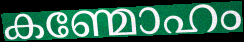
കണ്മോഹം